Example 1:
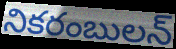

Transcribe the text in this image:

నికరంబులన్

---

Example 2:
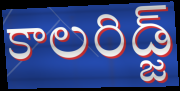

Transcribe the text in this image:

కాలరిడ్జ్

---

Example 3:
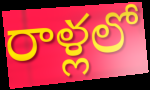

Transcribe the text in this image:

రాళ్లలో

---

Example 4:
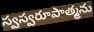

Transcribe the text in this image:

స్వస్వరూపాత్మను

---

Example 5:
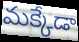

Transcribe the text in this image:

మక్కేడా